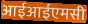
आईआईएमसी